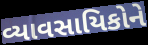
વ્યાવસાયિકોને